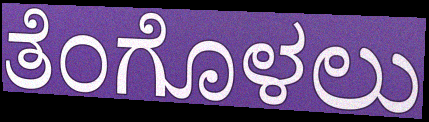
ತೆಂಗೊಳಲು